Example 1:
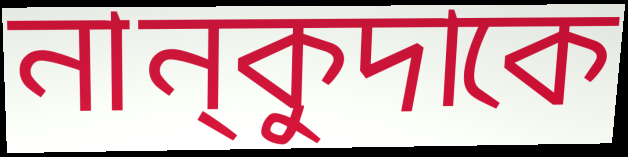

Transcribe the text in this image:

নান্‌কুদাকে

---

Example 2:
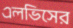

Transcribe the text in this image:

এলভিসের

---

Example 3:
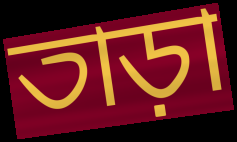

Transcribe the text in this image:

তাড়া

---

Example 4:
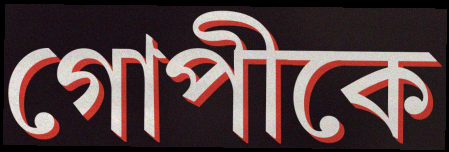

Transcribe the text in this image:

গোপীকে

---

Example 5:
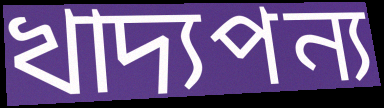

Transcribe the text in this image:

খাদ্যপন্য